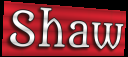
Shaw